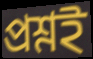
প্ৰশ্নই